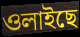
ওলাইছে